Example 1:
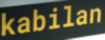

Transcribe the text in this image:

kabilan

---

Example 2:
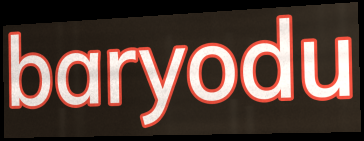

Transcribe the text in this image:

baryodu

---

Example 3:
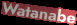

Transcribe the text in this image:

Watanabe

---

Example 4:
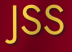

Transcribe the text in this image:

JSS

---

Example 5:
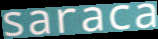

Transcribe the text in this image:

saraca